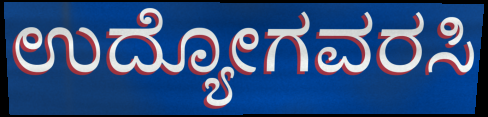
ಉದ್ಯೋಗವರಸಿ